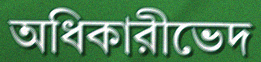
অধিকারীভেদ